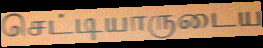
செட்டியாருடைய